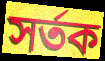
সর্তক